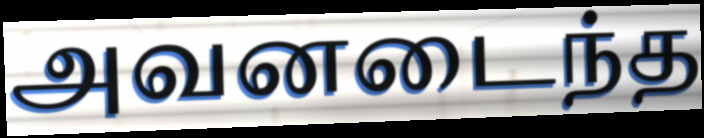
அவனடைந்த